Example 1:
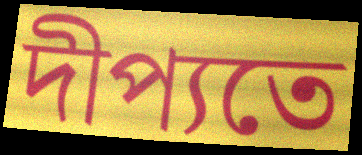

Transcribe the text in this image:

দীপ্যতে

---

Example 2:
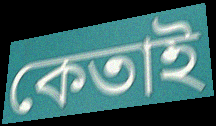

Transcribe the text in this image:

কেতাই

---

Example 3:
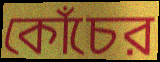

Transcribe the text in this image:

কোঁচের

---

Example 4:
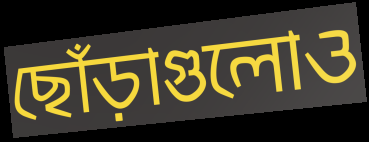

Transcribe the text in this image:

ছোঁড়াগুলোও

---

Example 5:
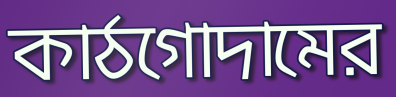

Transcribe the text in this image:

কাঠগোদামের